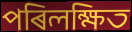
পৰিলক্ষিত